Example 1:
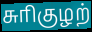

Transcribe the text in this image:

சுரிகுழற்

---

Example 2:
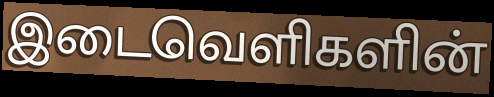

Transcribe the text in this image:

இடைவெளிகளின்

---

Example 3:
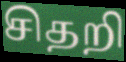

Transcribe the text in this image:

சிதறி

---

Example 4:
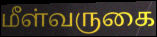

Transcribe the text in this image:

மீள்வருகை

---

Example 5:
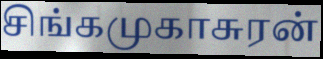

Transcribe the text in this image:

சிங்கமுகாசுரன்